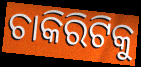
ଚାକିରିଟିକୁ